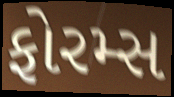
ફોરમ્સ